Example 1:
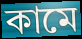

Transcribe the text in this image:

কামে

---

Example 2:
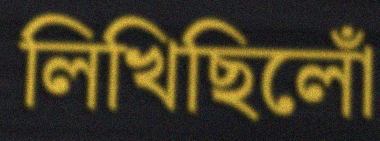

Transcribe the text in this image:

লিখিছিলোঁ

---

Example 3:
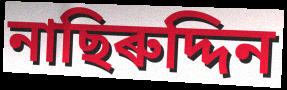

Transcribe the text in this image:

নাছিৰুদ্দিন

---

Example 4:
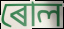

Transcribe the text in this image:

ৰোল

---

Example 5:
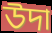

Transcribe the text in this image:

উদা